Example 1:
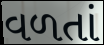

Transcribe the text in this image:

વળતાં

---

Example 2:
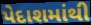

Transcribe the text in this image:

પેદાશમાંથી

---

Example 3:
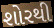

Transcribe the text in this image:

શોરથી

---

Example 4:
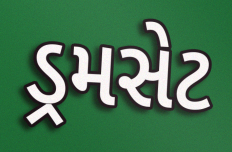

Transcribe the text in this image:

ડ્રમસેટ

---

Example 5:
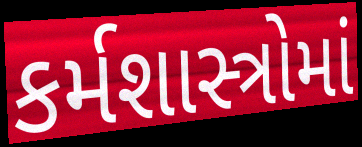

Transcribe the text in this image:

કર્મશાસ્ત્રોમાં